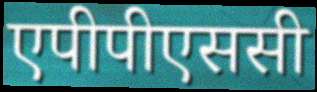
एपीपीएससी